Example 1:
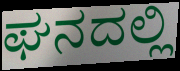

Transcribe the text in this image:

ಘನದಲ್ಲಿ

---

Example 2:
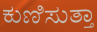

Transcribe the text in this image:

ಕುಣಿಸುತ್ತಾ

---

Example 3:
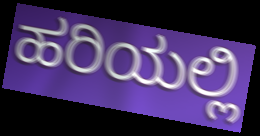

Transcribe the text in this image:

ಹರಿಯಲ್ಲಿ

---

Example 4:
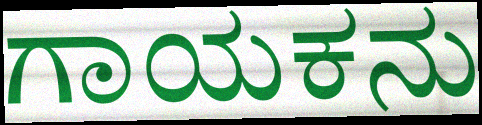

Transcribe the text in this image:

ಗಾಯಕನು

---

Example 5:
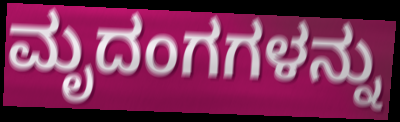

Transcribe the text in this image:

ಮೃದಂಗಗಳನ್ನು